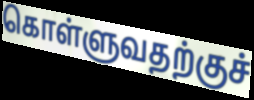
கொள்ளுவதற்குச்